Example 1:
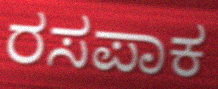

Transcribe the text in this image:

ರಸಪಾಕ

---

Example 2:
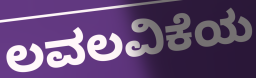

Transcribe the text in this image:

ಲವಲವಿಕೆಯ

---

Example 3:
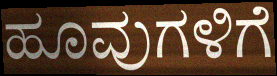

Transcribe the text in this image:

ಹೂವುಗಳಿಗೆ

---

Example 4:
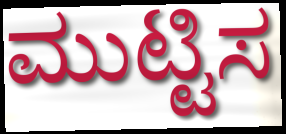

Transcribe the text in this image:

ಮುಟ್ಟಿಸ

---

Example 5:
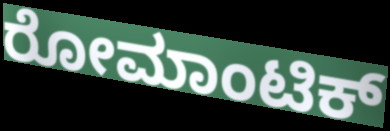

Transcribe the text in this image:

ರೋಮಾಂಟಿಕ್